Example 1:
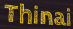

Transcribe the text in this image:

Thinai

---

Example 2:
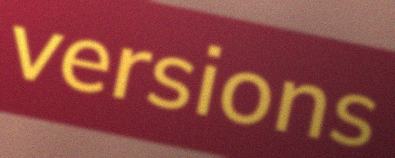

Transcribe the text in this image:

versions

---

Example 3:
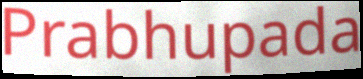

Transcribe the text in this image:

Prabhupada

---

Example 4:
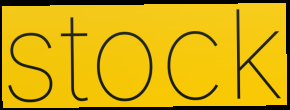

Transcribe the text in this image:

stock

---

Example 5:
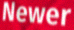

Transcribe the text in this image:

Newer